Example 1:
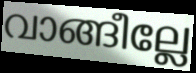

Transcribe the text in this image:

വാങ്ങീല്ലേ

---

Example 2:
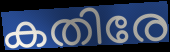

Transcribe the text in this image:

കതിരേ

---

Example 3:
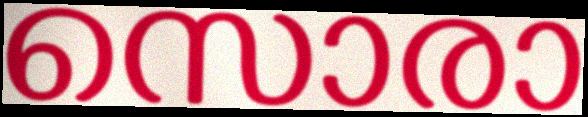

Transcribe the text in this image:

സൊരാ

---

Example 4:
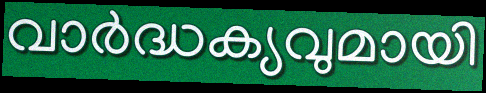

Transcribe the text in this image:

വാർദ്ധക്യവുമായി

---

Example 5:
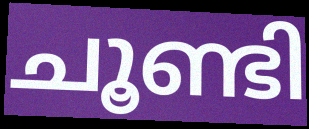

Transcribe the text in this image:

ചൂണ്ടി